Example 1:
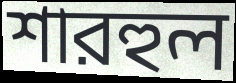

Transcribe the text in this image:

শারহুল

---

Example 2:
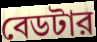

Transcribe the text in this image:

বেডটার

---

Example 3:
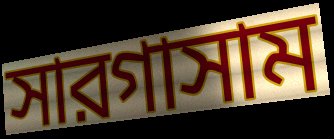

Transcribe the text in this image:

সারগাসাম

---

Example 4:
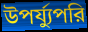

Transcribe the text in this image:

উপর্য্যুপরি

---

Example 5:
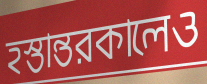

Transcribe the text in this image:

হস্তান্তরকালেও